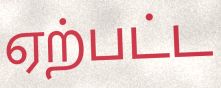
ஏற்பட்ட